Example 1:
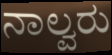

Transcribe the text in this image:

ನಾಲ್ವರು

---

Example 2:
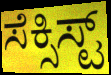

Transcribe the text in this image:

ಸೆಕ್ಸಿಸ್ಟ್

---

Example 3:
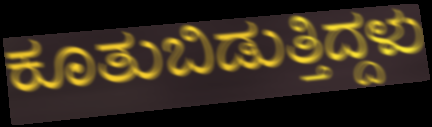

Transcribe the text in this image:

ಕೂತುಬಿಡುತ್ತಿದ್ದಳು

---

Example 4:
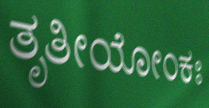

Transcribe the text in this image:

ತೃತೀಯೋಂಕಃ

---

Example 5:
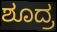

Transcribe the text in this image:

ಶೂದ್ರ